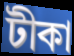
টীকা